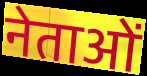
नेताओं